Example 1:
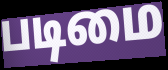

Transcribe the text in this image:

படிமை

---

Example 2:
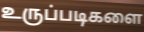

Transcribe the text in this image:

உருப்படிகளை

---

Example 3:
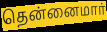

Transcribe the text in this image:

தென்னைமார்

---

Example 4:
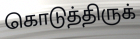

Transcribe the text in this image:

கொடுத்திருக்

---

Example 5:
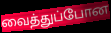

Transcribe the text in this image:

வைத்துப்போன